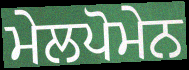
ਮੇਲਪੋਮੇਨ